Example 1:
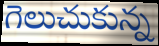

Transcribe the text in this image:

గెలుచుకున్న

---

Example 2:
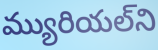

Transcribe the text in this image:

మ్యురియల్‌ని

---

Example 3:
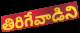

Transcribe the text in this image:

తిరిగేవాడిని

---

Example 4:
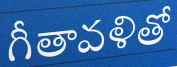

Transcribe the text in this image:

గీతావళితో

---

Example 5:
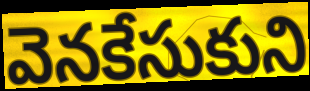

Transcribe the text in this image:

వెనకేసుకుని